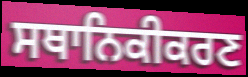
ਸਥਾਨਿਕੀਕਰਣ